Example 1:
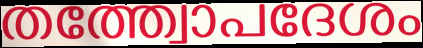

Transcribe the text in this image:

തത്ത്വോപദേശം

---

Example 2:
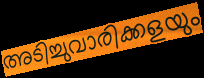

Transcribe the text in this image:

അടിച്ചുവാരിക്കളയും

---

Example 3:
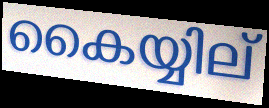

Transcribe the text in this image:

കൈയ്യില്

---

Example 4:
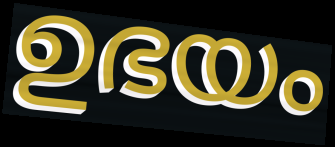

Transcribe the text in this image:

ഉഭയം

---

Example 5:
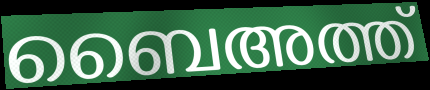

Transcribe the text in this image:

ബൈഅത്ത്